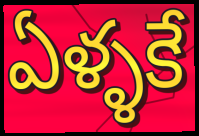
ఏళ్ళకే